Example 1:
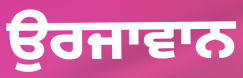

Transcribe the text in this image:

ਉਰਜਾਵਾਨ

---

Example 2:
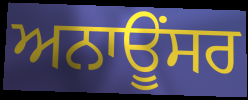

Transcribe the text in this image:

ਅਨਾਊਂਸਰ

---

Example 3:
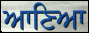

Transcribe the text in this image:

ਆਣਿਆ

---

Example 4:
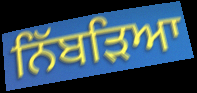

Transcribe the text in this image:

ਨਿੱਬੜਿਆ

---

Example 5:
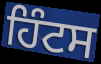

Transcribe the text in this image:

ਹਿੰਟਸ